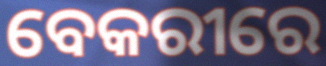
ବେକରୀରେ